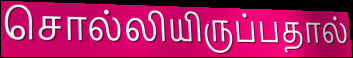
சொல்லியிருப்பதால்